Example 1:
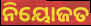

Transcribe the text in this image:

ନିୟୋଜତ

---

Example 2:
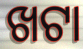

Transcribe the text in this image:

ଖଟା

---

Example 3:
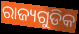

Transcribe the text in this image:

ରାଜ୍ୟଗୁଡିକ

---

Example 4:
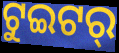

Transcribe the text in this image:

ଟୁଇଟର୍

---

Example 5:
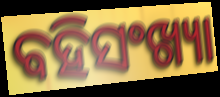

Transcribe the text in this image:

ବହିସଂଖ୍ୟା